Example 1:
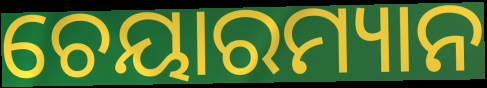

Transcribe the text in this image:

ଚେୟାରମ୍ୟାନ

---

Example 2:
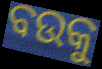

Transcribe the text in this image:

ବଉକୁ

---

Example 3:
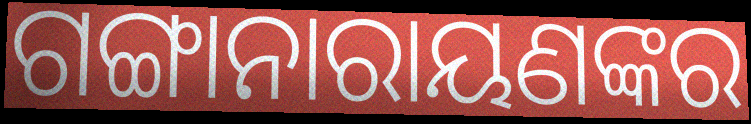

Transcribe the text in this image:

ଗଙ୍ଗାନାରାୟଣଙ୍କର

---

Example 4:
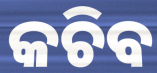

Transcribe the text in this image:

କଚିବ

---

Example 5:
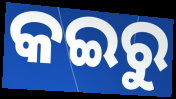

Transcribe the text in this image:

କଇରୁ